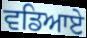
ਵਡਿਆਏ